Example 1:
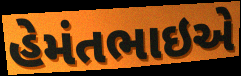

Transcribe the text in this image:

હેમંતભાઇએ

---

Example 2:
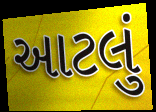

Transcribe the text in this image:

આટલું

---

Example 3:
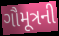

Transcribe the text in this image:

ગૌમૂત્રની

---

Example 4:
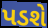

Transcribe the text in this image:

પડશે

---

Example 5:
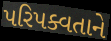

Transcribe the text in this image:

પરિપક્વતાને